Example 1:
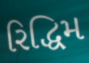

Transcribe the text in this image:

રિદ્ધિમ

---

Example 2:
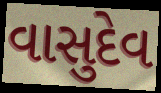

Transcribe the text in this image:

વાસુદેવ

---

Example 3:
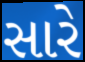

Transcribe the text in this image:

સારે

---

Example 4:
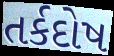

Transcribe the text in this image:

તર્કદોષ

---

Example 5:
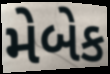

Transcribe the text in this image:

મેબેક